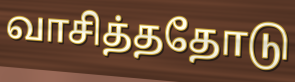
வாசித்ததோடு